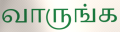
வாருங்க